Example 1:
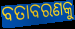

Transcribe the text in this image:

ବତାବରଣକୁ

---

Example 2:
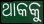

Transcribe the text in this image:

ଥାକକୁ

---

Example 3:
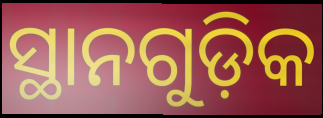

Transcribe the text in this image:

ସ୍ଥାନଗୁଡ଼ିକ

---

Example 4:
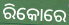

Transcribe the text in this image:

ରିକୋରେ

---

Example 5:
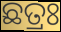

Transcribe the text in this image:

ଛତ୍ରଃ